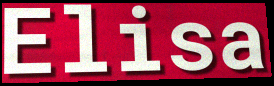
Elisa